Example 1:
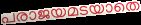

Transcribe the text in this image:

പരാജയമടയാതെ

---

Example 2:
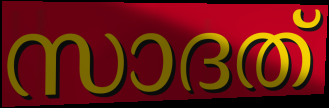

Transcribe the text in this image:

സാദത്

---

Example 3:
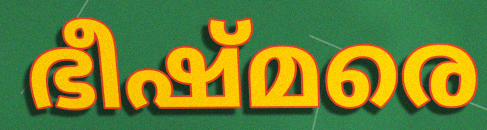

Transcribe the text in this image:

ഭീഷ്മരെ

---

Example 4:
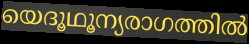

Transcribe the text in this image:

യെദൂഥൂന്യരാഗത്തിൽ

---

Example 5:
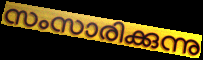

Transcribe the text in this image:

സംസാരിക്കുന്നു